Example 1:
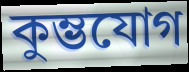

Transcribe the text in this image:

কুম্ভযোগ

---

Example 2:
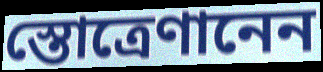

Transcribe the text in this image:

স্তোত্রেণানেন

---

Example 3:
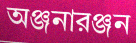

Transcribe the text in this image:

অঞ্জনারঞ্জন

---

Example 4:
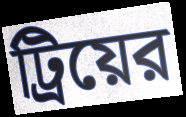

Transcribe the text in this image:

ট্রিয়ের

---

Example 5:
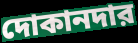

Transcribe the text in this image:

দোকানদার